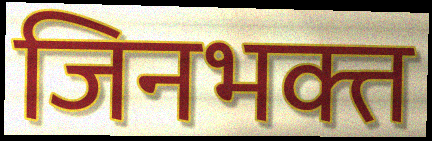
जिनभक्त